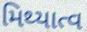
મિથ્યાત્વ